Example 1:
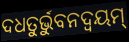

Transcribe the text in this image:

ଦଧତୁର୍ଭୁବନଦ୍ଵୟମ୍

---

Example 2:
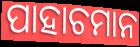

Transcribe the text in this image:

ପାହାଚମାନ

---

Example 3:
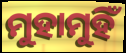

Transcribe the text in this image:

ମୁହାମୁହିଁ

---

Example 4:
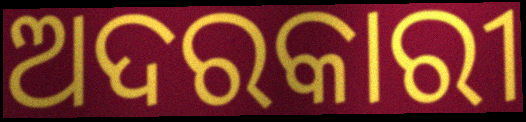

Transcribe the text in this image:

ଅଦରକାରୀ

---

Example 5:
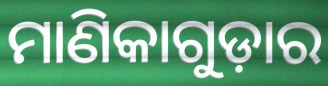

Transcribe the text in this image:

ମାଣିକାଗୁଡ଼ାର